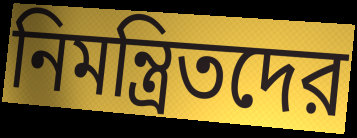
নিমন্ত্রিতদের